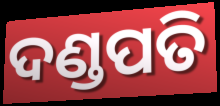
ଦଣ୍ଡପତି